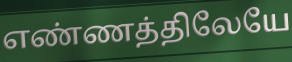
எண்ணத்திலேயே